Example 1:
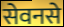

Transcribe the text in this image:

सेवनसे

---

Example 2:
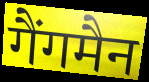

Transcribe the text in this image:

गैंगमैन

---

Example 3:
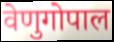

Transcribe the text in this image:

वेणुगोपाल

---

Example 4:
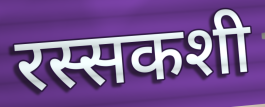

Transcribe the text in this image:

रस्सकशी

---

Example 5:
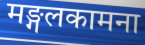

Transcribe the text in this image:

मङ्गलकामना